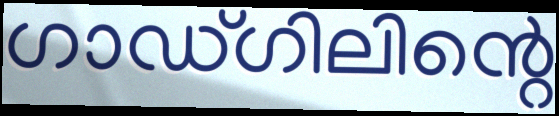
ഗാഡ്ഗിലിന്റെ